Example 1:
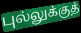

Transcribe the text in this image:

புல்லுக்குத்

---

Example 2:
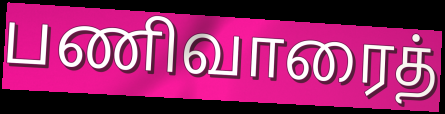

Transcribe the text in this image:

பணிவாரைத்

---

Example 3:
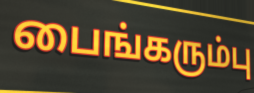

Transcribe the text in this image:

பைங்கரும்பு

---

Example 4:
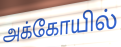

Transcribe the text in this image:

அக்கோயில்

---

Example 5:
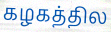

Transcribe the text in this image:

கழகத்தில